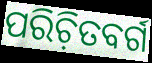
ପରିଚ଼ିତବର୍ଗ